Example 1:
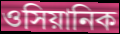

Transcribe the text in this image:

ওসিয়ানিক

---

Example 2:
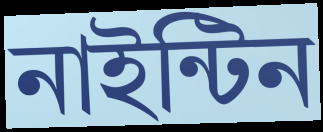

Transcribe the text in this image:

নাইন্টিন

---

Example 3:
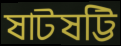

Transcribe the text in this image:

ষাটষট্টি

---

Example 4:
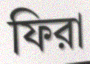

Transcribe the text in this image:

ফিরা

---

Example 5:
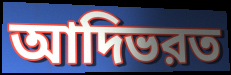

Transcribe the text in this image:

আদিভরত